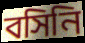
বসিনি